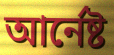
আৰ্নেষ্ট